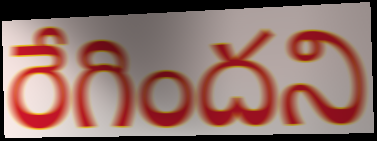
రేగిందని